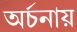
অর্চনায়